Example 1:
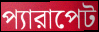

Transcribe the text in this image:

প্যারাপেট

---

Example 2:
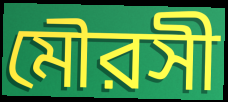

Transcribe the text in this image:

মৌরসী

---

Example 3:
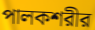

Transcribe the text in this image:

পালকশরীর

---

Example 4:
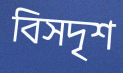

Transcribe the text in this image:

বিসদৃশ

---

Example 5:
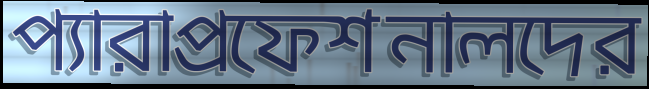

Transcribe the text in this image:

প্যারাপ্রফেশনালদের